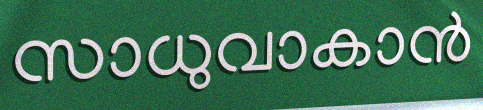
സാധുവാകാൻ